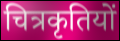
चित्रकृतियों